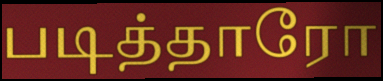
படித்தாரோ